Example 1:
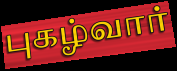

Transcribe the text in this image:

புகழ்வார்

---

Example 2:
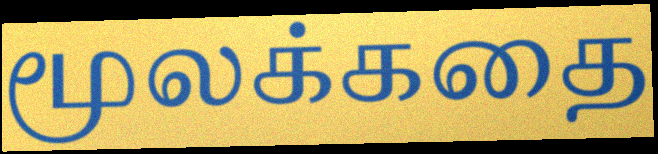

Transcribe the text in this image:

மூலக்கதை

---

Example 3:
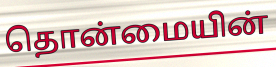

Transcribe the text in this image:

தொன்மையின்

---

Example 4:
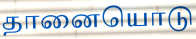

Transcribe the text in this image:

தானையொடு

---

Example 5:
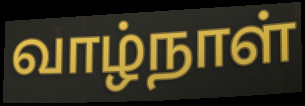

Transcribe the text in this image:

வாழ்நாள்